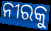
ନୀରକୁ